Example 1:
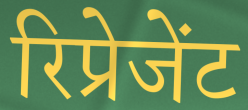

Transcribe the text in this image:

रिप्रेजेंट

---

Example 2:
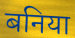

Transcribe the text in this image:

बनिया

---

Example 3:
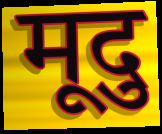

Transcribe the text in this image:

मूदु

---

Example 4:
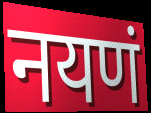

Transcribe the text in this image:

नयणं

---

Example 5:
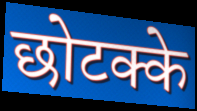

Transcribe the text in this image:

छोटक्के